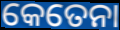
କେତେନା